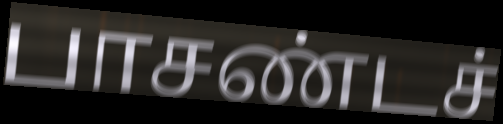
பாசண்டச்